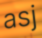
asj